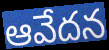
ఆవేదన